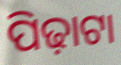
ପିଢ଼ାଟା